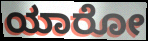
ಯಾರೋ